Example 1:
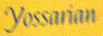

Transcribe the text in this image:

Yossarian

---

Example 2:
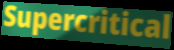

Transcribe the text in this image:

Supercritical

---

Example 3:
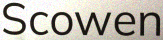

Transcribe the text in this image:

Scowen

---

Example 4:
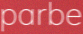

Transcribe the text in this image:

parbe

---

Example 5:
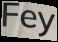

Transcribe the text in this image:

Fey